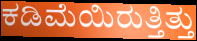
ಕಡಿಮೆಯಿರುತ್ತಿತ್ತು